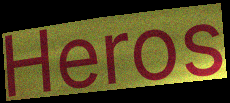
Heros